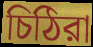
চিঠিরা